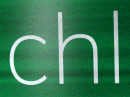
chl